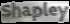
Shapley